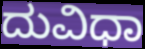
ದುವಿಧಾ